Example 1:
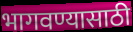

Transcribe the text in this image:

भागवण्यासाठी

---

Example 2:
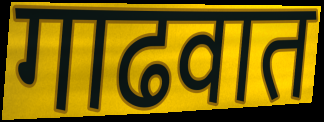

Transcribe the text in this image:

गाढवात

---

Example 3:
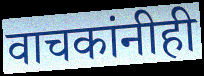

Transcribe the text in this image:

वाचकांनीही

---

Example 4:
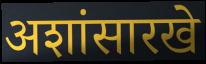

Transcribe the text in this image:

अशांसारखे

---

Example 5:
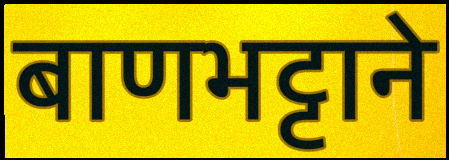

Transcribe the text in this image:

बाणभट्टाने